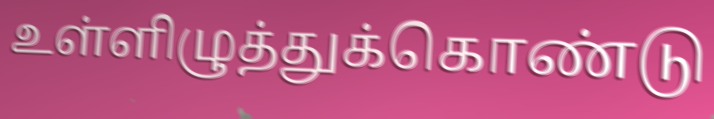
உள்ளிழுத்துக்கொண்டு